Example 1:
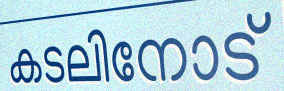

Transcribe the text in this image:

കടലിനോട്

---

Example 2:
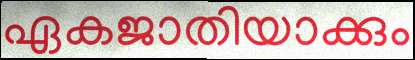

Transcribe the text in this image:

ഏകജാതിയാക്കും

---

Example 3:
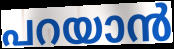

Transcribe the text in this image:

പറയാൻ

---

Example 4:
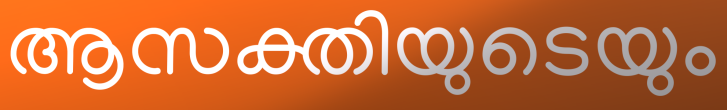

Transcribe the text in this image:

ആസക്തിയുടെയും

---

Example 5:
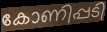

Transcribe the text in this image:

കോണിപ്പടി